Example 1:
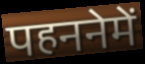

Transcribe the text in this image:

पहननेमें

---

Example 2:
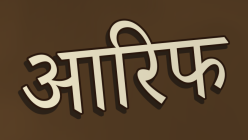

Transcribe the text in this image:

आरिफ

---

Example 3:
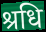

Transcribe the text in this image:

श्रधि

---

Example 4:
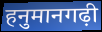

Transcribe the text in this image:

हनुमानगढ़ी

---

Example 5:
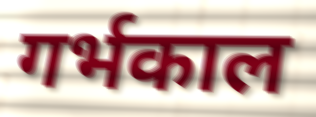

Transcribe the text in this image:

गर्भकाल